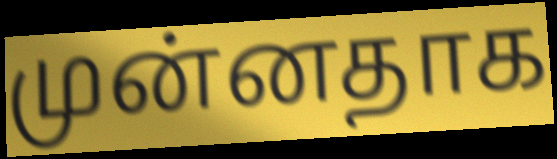
முன்னதாக